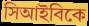
সিআইবিকে